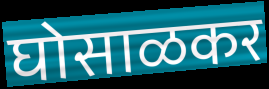
घोसाळकर